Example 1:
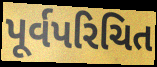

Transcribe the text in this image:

પૂર્વપરિચિત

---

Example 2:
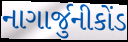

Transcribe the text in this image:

નાગાર્જુનીકોંડ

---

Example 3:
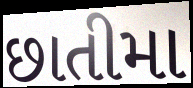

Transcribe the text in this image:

છાતીમા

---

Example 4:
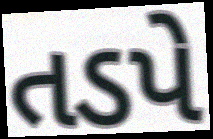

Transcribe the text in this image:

તડપે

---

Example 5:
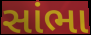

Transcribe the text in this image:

સાંભા